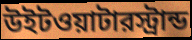
উইটওয়াটারস্ট্রান্ড